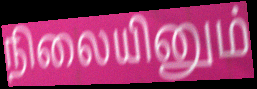
நிலையினும்